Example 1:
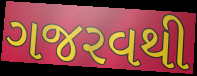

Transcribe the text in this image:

ગજરવથી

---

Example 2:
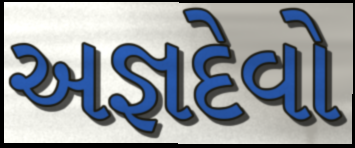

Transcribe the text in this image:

અજ્ઞદેવો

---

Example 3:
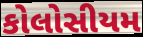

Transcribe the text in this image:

કોલોસીયમ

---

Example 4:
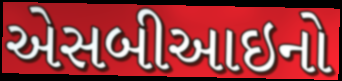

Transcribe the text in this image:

એસબીઆઇનો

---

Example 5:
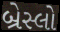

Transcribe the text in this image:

બ્રેસ્લો